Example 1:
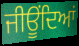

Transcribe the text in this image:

ਜੀਊਂਦਿਆਂ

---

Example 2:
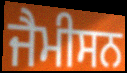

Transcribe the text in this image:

ਜੈਮੀਸਨ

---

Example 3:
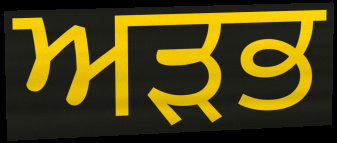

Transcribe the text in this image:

ਅੜਭ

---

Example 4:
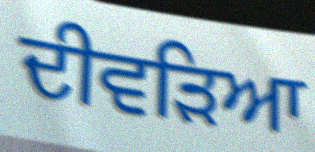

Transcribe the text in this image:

ਦੀਵੜਿਆ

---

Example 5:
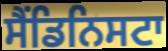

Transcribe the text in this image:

ਸੈਂਡਿਨਿਸਟਾ